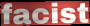
facist